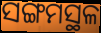
ସଙ୍ଗମସ୍ଥଳ